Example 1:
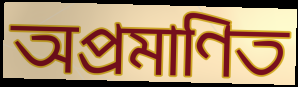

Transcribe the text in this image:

অপ্ৰমাণিত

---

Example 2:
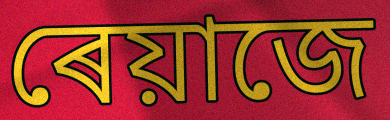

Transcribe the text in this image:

ৰেয়াজে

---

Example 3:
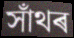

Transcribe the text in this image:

সাঁথৰ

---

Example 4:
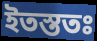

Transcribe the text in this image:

ইতস্ততঃ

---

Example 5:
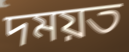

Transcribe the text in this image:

দময়ত